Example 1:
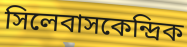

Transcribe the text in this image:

সিলেবাসকেন্দ্রিক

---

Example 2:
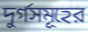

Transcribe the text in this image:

দুর্গসমূহের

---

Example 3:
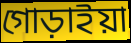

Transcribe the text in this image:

গোড়াইয়া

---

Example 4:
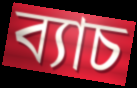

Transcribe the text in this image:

ব্যাচ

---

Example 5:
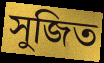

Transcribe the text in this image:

সুজিত